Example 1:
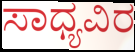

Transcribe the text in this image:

ಸಾಧ್ಯವಿರ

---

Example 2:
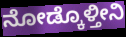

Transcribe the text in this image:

ನೋಡ್ಕೊಳ್ತೀನಿ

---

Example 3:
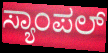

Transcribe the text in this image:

ಸ್ಯಾಂಪಲ್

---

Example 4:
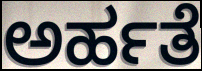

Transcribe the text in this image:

ಅರ್ಹತೆ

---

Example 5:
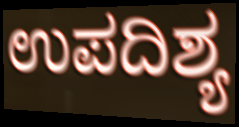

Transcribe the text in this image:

ಉಪದಿಶ್ಯ